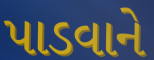
પાડવાને